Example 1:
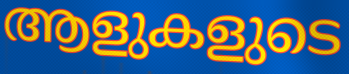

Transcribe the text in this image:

ആളുകളുടെ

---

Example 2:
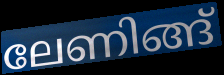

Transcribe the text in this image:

ലേണിങ്ങ്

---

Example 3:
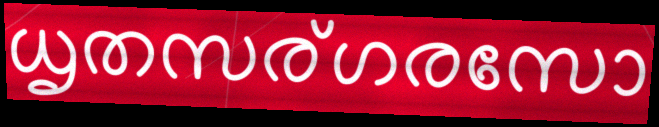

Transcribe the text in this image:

ധൃതസര്ഗരസോ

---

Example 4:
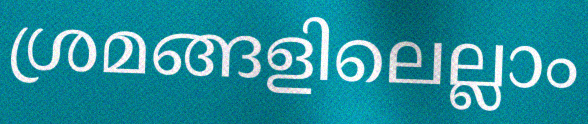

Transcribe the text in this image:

ശ്രമങ്ങളിലെല്ലാം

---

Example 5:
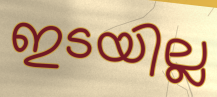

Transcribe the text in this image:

ഇടയില്ല